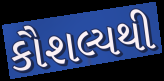
કૌશલ્યથી